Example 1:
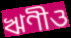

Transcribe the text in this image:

ঋণীও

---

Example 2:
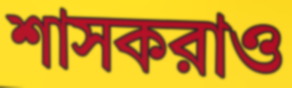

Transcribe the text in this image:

শাসকরাও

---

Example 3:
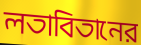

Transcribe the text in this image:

লতাবিতানের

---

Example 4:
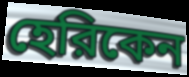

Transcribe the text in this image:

হেরিকেন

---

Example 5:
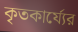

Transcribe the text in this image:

কৃতকার্য্যের